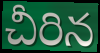
చీరిన